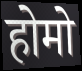
होमो